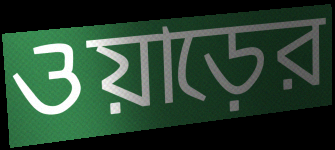
ওয়াড়ের